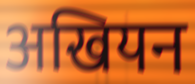
अखियन